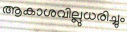
ആകാശവില്ലുധരിച്ചും